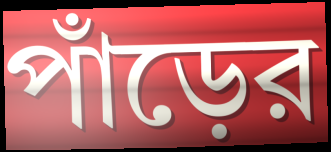
পাঁড়ের